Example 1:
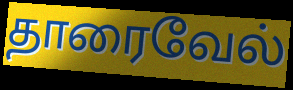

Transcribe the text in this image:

தாரைவேல்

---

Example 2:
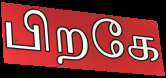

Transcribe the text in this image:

பிறகே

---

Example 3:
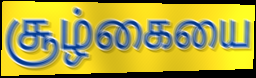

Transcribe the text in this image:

சூழ்கையை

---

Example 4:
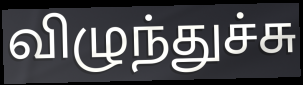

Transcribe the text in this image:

விழுந்துச்சு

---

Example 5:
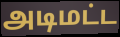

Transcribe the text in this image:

அடிமட்ட